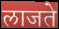
लाजते